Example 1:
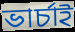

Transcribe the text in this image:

ভাৰ্চাই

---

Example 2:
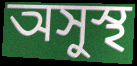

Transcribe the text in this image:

অসুস্থ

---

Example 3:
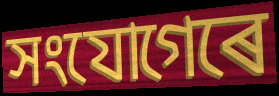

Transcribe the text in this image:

সংযোগেৰে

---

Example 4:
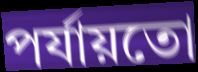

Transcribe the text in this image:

পৰ্যায়তো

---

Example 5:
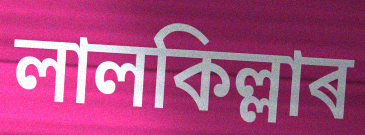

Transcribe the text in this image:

লালকিল্লাৰ